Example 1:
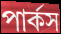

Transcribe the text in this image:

পার্কস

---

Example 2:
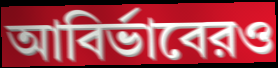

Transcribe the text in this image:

আবির্ভাবেরও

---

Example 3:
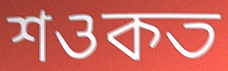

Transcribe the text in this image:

শওকত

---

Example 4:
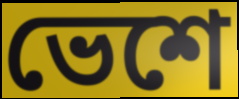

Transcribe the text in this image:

ভেশে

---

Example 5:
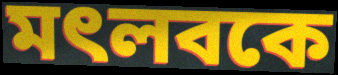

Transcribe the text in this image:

মৎলবকে